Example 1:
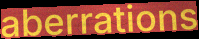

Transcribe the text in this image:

aberrations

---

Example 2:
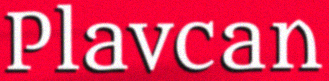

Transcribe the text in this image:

Plavcan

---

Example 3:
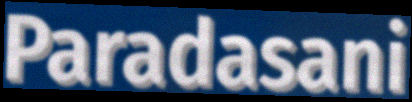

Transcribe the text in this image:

Paradasani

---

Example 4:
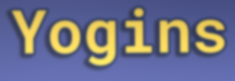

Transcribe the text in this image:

Yogins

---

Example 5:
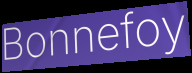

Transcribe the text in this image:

Bonnefoy